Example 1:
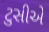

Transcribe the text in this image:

ટુસીએ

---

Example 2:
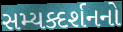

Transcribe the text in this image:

સમ્યક્દર્શનનો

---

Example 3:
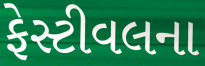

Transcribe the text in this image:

ફેસ્ટીવલના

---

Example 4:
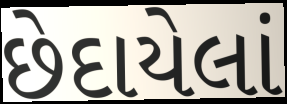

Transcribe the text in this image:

છેદાયેલાં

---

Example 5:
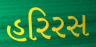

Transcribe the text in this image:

હરિરસ